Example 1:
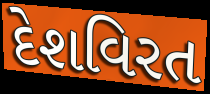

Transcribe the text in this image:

દેશવિરત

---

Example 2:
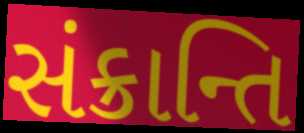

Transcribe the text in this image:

સંક્રાન્તિ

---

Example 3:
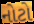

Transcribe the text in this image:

નોટો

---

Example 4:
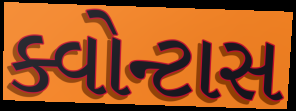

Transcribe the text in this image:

ક્વોન્ટાસ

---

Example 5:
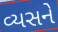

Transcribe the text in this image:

વ્યસને